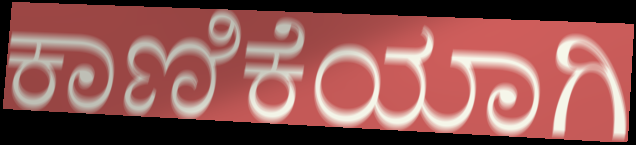
ಕಾಣಿಕೆಯಾಗಿ